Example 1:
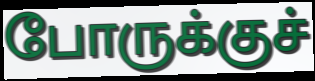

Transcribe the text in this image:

போருக்குச்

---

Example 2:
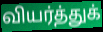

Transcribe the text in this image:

வியர்த்துக்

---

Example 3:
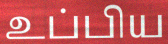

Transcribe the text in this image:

உப்பிய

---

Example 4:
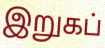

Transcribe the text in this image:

இறுகப்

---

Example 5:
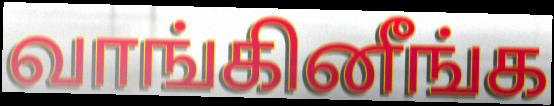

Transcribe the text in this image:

வாங்கினீங்க